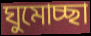
ঘুমোচ্ছা